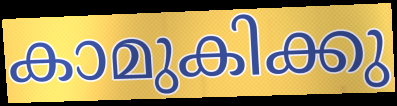
കാമുകിക്കു